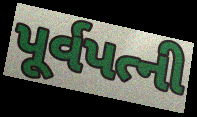
પૂર્વપત્ની